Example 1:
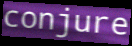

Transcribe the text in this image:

conjure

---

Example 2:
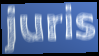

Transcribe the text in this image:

juris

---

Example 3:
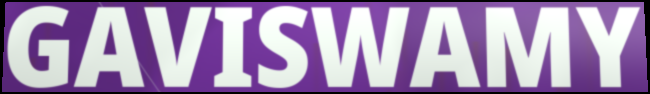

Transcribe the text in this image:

GAVISWAMY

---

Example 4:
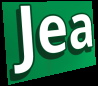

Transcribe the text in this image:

Jea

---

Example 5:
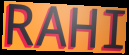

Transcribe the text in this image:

RAHI